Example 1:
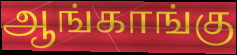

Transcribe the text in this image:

ஆங்காங்கு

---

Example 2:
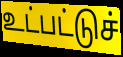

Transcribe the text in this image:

உட்பட்டுச்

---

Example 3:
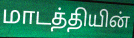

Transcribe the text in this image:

மாடத்தியின்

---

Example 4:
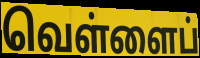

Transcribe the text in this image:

வெள்ளைப்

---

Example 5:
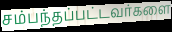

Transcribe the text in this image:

சம்பந்தப்பட்டவர்களை